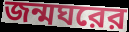
জন্মঘরের